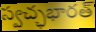
స్వచ్ఛభారత్